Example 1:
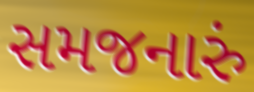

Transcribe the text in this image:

સમજનારું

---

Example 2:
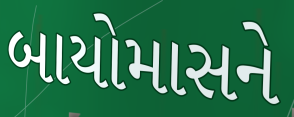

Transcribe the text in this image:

બાયોમાસને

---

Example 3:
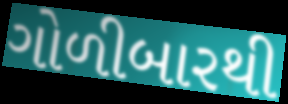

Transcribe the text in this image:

ગોળીબારથી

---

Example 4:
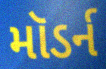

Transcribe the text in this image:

મૉડર્ન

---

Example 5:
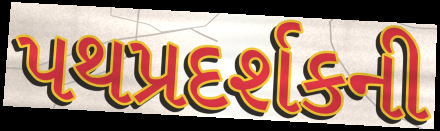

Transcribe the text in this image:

પથપ્રદર્શકની